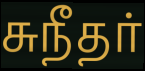
சுநீதர்